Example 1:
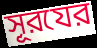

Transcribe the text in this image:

সূরযের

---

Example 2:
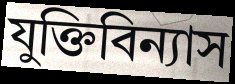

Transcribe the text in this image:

যুক্তিবিন্যাস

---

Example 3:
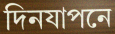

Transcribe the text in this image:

দিনযাপনে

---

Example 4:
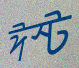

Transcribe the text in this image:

ঈস্ট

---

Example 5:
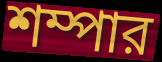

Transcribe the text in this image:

শম্পার